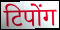
टिपोंग